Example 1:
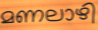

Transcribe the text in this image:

മണലാഴി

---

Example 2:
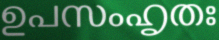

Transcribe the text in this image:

ഉപസംഹൃതഃ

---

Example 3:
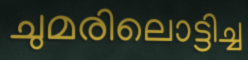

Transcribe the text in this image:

ചുമരിലൊട്ടിച്ച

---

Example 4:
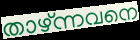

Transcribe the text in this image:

താഴ്ന്നവനെ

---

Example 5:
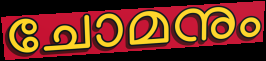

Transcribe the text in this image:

ചോമനും